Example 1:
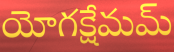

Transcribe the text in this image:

యోగక్షేమమ్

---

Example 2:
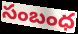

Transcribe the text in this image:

సంబంధ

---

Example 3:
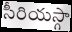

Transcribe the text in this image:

సీరియస్గా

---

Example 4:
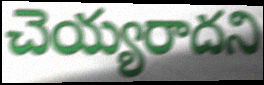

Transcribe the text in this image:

చెయ్యరాదని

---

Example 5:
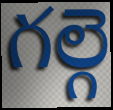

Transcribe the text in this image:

గల్గె